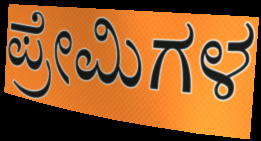
ಪ್ರೇಮಿಗಳ